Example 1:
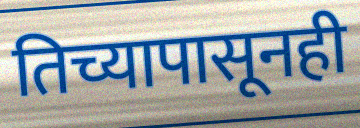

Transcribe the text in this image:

तिच्यापासूनही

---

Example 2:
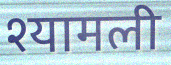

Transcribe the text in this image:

श्यामली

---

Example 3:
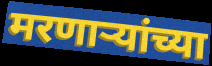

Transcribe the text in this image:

मरणाऱ्यांच्या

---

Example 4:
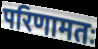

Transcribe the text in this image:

परिणामतः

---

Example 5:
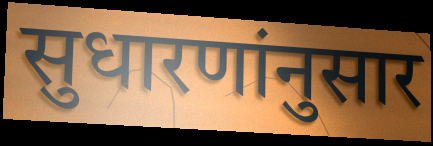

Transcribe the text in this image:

सुधारणांनुसार